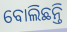
ବୋଲିଛନ୍ତି